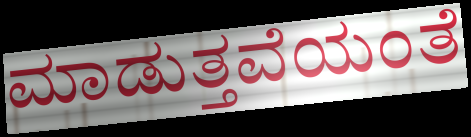
ಮಾಡುತ್ತವೆಯಂತೆ